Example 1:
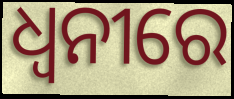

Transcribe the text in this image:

ଧ୍ଵନୀରେ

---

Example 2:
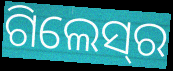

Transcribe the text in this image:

ଗିଲେସ୍‍ର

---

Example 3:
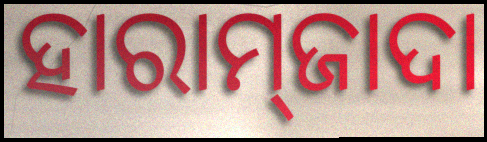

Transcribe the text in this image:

ହାରାମ୍‌ଜାଦା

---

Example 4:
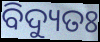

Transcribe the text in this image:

ବିଦ୍ୟୁତଃ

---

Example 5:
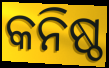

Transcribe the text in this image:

କନିଷ୍ଠ